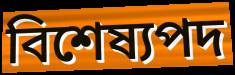
বিশেষ্যপদ